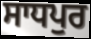
ਸਾਧਪੁਰ